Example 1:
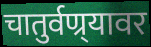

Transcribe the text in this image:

चातुर्वण्र्यावर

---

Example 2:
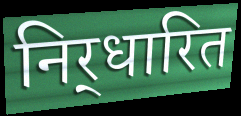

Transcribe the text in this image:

निर्धारित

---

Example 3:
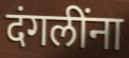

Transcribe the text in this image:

दंगलींना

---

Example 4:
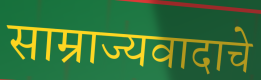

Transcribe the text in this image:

साम्राज्यवादाचे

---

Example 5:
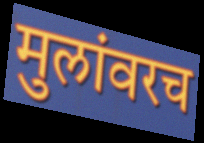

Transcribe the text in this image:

मुलांवरच